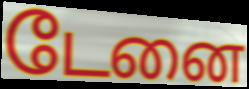
டேனை